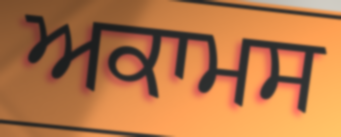
ਅਕਾਮਸ